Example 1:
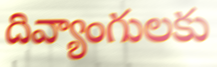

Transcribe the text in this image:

దివ్యాంగులకు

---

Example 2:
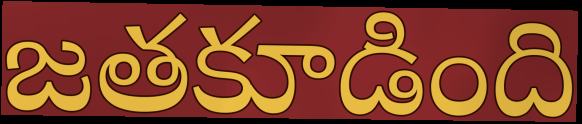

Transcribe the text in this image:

జతకూడింది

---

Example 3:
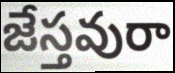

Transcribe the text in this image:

జేస్తవురా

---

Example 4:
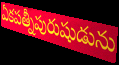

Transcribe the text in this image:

ఏకపత్నీపురుషుడును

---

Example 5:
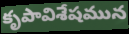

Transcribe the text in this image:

కృపావిశేషమున